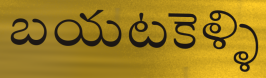
బయటకెళ్ళి